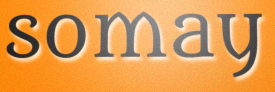
somay